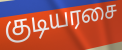
குடியரசை